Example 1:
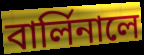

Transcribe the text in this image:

বার্লিনালে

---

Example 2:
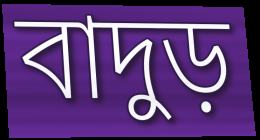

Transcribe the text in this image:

বাদুড়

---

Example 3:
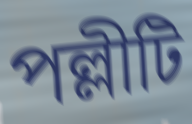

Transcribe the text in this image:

পল্লীটি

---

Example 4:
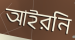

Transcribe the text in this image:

আইরনি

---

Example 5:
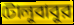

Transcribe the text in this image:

টোলুবাবুর